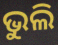
ଭୁଲି